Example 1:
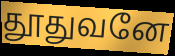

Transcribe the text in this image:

தூதுவனே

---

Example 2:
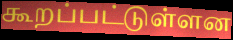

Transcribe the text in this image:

கூறப்பட்டுள்ளன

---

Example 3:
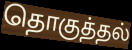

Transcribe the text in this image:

தொகுத்தல்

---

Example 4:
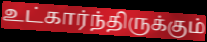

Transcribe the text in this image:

உட்கார்ந்திருக்கும்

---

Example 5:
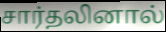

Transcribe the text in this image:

சார்தலினால்